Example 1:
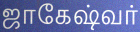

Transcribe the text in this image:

ஜாகேஷ்வர்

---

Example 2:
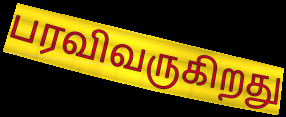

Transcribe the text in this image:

பரவிவருகிறது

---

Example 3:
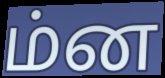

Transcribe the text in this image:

ம்ன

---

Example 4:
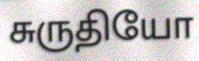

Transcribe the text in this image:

சுருதியோ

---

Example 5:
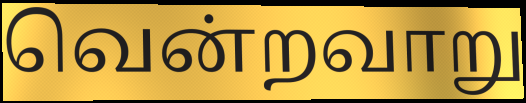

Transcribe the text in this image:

வென்றவாறு